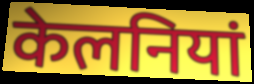
केलनियां